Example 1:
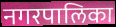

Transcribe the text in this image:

नगरपालिका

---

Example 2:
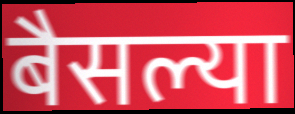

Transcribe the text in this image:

बैसल्या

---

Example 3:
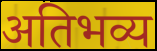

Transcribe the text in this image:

अतिभव्य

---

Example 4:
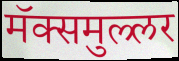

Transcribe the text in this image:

मॅक्समुल्लर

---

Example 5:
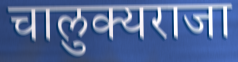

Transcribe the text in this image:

चालुक्यराजा